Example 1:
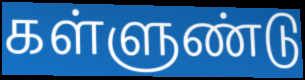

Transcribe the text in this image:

கள்ளுண்டு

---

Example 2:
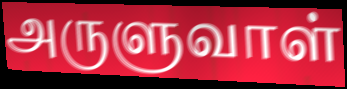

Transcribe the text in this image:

அருளுவாள்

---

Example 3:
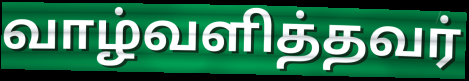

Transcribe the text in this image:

வாழ்வளித்தவர்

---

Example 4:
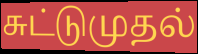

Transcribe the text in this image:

சுட்டுமுதல்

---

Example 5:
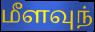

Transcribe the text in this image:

மீளவுந்